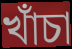
খাঁচা